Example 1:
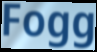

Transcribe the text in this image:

Fogg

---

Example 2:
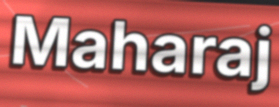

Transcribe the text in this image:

Maharaj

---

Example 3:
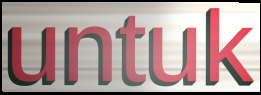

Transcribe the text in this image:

untuk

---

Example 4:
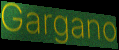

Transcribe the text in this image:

Gargano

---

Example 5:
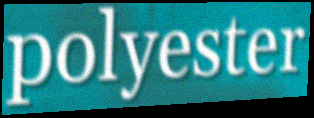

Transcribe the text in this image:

polyester